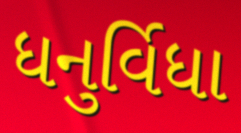
ધનુર્વિધા